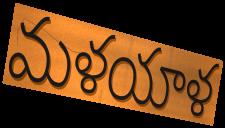
మళయాళ